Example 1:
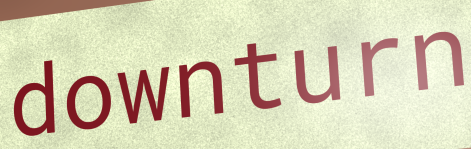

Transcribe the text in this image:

downturn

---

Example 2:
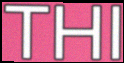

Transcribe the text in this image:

THI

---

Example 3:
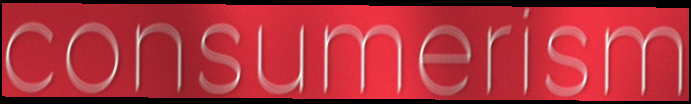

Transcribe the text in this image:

consumerism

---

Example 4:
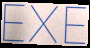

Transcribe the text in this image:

EXE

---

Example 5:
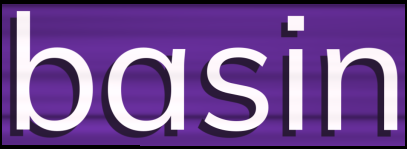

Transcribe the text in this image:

basin